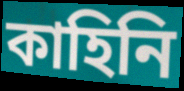
কাহিনি